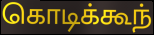
கொடிக்கூந்